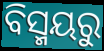
ବିସ୍ମୟରୁ